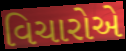
વિચારોએ